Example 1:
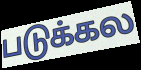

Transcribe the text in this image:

படுக்கல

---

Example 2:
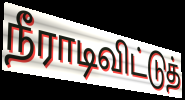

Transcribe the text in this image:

நீராடிவிட்டுத்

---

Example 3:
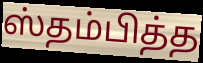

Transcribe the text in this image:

ஸ்தம்பித்த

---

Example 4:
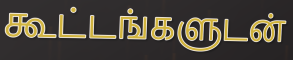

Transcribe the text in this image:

கூட்டங்களுடன்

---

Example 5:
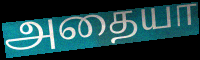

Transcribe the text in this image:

அதையா